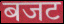
बजट